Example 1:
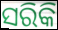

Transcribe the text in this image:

ସରିକି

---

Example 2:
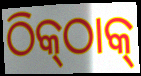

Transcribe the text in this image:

ଠିକ୍‌ଠାକ୍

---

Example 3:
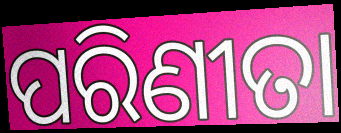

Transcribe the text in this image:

ପରିଣୀତା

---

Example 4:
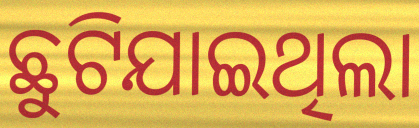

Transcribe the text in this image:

ଛୁଟିଯାଇଥିଲା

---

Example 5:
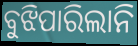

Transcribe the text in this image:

ବୁଝିପାରିଲାନି